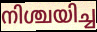
നിശ്ചയിച്ച